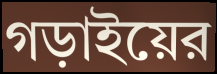
গড়াইয়ের